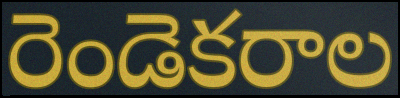
రెండెకరాల